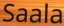
Saala